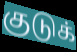
குடுக்